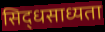
सिद्धसाध्यता